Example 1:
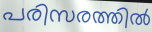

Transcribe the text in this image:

പരിസരത്തിൽ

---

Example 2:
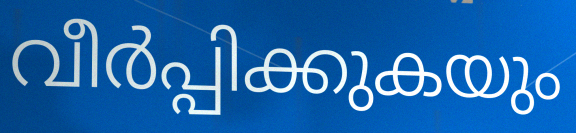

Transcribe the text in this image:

വീർപ്പിക്കുകയും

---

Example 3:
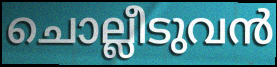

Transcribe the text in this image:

ചൊല്ലീടുവൻ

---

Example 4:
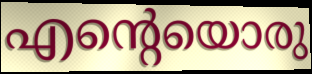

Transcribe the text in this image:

എന്റെയൊരു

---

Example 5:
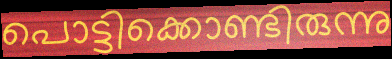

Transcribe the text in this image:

പൊട്ടിക്കൊണ്ടിരുന്നു